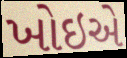
ખોઇએ